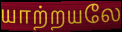
யாற்றயலே